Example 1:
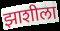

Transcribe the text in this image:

झाशीला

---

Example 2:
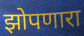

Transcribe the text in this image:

झोपणारा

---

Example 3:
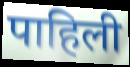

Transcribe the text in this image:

पाहिली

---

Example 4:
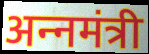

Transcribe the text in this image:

अन्नमंत्री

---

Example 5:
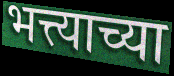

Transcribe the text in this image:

भत्त्याच्या